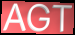
AGT